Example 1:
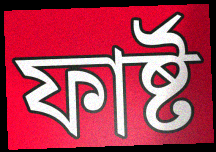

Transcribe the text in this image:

ফার্ষ্ট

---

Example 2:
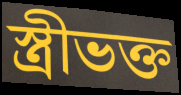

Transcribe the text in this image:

স্ত্রীভক্ত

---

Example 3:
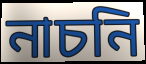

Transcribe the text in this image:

নাচনি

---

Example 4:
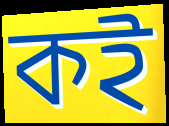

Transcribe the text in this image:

কই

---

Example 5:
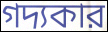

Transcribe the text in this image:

গদ্যকার